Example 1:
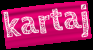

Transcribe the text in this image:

kartaj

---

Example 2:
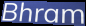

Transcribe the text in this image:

Bhram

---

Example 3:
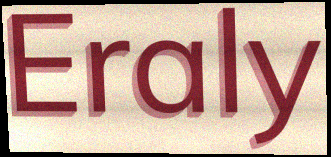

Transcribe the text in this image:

Eraly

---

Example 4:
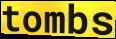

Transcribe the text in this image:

tombs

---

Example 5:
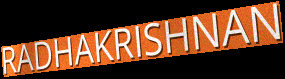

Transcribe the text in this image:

RADHAKRISHNAN